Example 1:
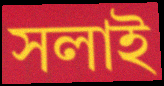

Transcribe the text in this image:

সলাই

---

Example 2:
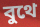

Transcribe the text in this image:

বুথে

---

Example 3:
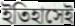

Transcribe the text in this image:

ইতিহাসেই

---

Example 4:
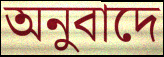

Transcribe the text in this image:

অনুবাদে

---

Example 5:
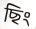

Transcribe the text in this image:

ছিং